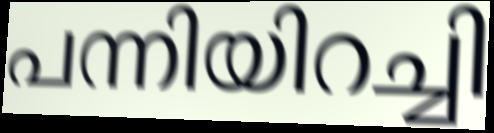
പന്നിയിറച്ചി